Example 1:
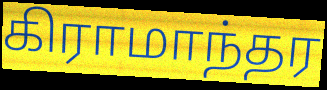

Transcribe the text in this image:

கிராமாந்தர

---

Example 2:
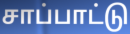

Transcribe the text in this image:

சாப்பாட்டு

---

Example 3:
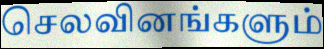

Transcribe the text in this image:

செலவினங்களும்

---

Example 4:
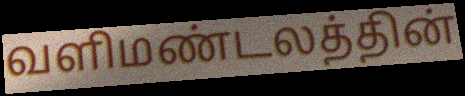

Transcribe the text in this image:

வளிமண்டலத்தின்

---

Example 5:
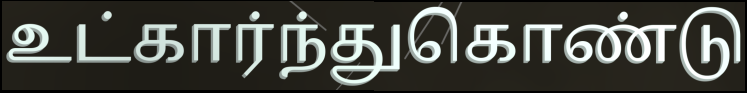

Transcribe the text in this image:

உட்கார்ந்துகொண்டு